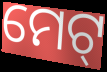
ମେଟ୍